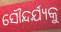
ସୌନ୍ଦର୍ଯ୍ଯକୁ